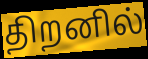
திறனில்